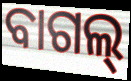
ବାଗଲ୍